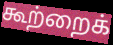
கூற்றைக்